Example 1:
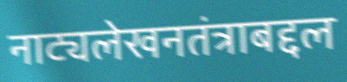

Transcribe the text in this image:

नाट्यलेखनतंत्राबद्दल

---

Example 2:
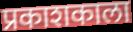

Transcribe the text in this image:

प्रकाशकाला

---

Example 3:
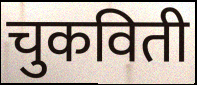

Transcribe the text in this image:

चुकविती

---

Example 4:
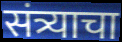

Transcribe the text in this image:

संत्र्याचा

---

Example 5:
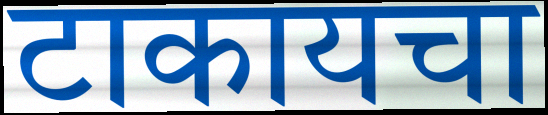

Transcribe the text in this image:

टाकायचा